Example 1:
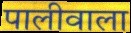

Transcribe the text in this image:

पालीवाला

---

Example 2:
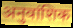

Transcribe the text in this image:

अनुवांशिक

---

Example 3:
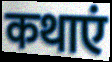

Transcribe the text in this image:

कथाएं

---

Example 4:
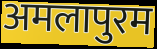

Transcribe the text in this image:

अमलापुरम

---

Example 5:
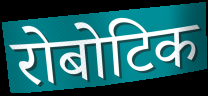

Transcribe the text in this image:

रोबोटिक